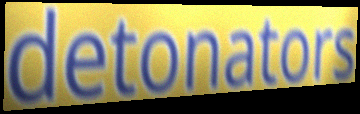
detonators